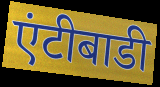
एंटीबाडी